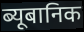
ब्यूबानिक